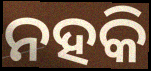
ନହକି